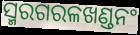
ସ୍ମରଗରଳଖଣ୍ଡନଂ